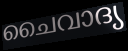
ചൈവാദ്യ